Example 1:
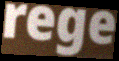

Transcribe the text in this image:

rege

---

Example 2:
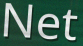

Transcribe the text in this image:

Net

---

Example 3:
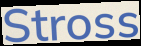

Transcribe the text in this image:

Stross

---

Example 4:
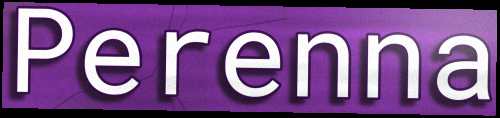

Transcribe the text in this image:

Perenna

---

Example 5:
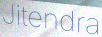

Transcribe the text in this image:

Jitendra